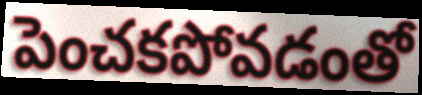
పెంచకపోవడంతో